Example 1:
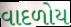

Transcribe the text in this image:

વાદળોય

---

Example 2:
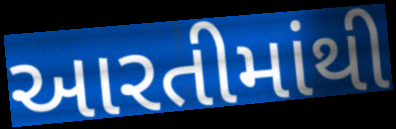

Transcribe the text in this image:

આરતીમાંથી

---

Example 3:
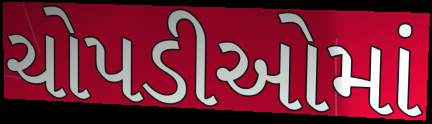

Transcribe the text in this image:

ચોપડીઓમાં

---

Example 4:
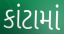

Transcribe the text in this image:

કાંટામાં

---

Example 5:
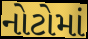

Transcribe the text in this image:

નોટોમાં